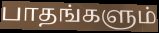
பாதங்களும்